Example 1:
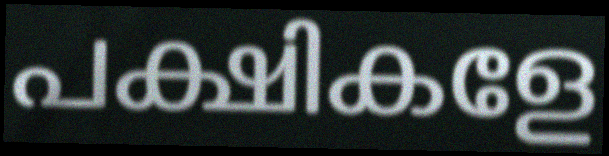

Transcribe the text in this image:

പക്ഷികളേ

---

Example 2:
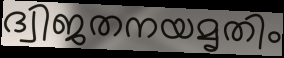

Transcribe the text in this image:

ദ്വിജതനയമൃതിം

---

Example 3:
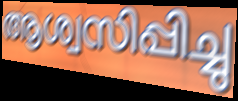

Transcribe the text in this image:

ആശ്വസിപ്പിച്ചു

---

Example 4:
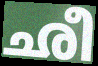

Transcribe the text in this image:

ഛീ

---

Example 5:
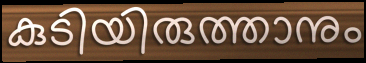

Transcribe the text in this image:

കുടിയിരുത്താനും